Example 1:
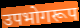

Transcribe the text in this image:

उपभोगरूप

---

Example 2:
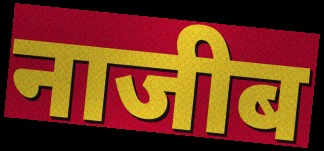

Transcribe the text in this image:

नाजीब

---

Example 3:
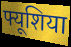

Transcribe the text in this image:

फ्यूशिया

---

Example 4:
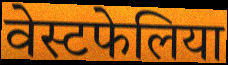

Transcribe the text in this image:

वेस्टफेलिया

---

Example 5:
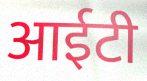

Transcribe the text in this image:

आईटी